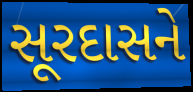
સૂરદાસને